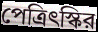
পেত্রিৎস্কির